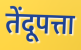
तेंदूपत्ता